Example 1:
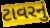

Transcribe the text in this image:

ટાવરનું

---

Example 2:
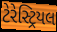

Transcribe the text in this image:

ટેરેસ્ટ્રિયલ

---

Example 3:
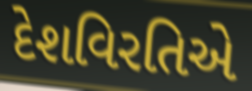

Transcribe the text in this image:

દેશવિરતિએ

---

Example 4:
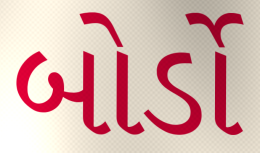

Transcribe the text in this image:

બોર્ડો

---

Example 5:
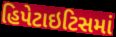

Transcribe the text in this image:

હિપેટાઇટિસમાં